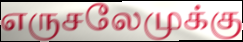
எருசலேமுக்கு